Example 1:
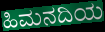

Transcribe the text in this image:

ಹಿಮನದಿಯ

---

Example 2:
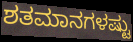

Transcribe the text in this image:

ಶತಮಾನಗಳಷ್ಟು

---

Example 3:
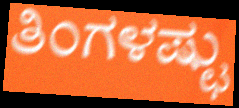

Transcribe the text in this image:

ತಿಂಗಳಷ್ಟು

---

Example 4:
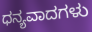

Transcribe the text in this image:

ಧನ್ಯವಾದಗಳು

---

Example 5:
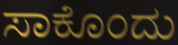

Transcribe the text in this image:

ಸಾಕೊಂದು